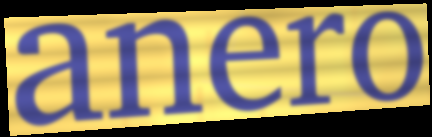
anero